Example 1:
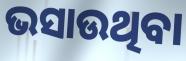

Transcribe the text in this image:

ଭସାଉଥିବା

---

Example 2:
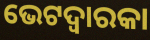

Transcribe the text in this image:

ଭେଟଦ୍ୱାରକା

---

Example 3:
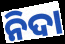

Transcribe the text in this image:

ନିଦା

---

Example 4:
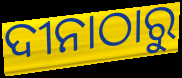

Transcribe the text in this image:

ଦୀନାଠାରୁ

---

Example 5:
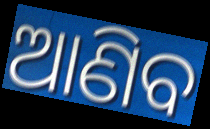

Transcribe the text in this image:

ଆଣିବ